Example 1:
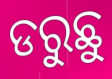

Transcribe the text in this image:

ଡରୁଛୁ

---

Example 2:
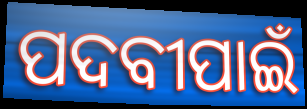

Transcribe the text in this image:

ପଦବୀପାଇଁ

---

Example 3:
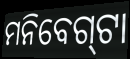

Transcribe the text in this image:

ମନିବେଗ୍‍ଟା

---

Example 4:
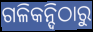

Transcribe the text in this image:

ଗଳିକନ୍ଦିଠାରୁ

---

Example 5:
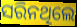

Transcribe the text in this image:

ସରିନଥିଲେ